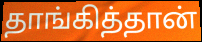
தாங்கித்தான்